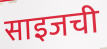
साइजची